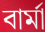
বাৰ্মা